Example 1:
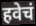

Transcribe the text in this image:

हवेचं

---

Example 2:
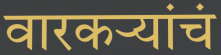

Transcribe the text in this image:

वारकऱ्यांचं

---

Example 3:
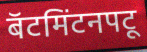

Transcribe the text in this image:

बॅटमिंटनपटू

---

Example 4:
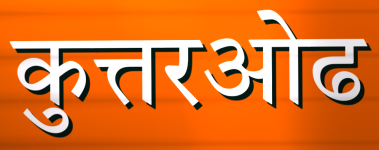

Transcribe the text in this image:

कुत्तरओढ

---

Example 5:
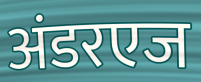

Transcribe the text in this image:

अंडरएज